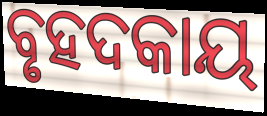
ବୃହଦକାୟ